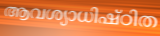
ആവശ്യാധിഷ്ഠിത